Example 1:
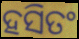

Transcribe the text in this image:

ହସିତଂ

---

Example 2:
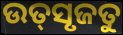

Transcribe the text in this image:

ଉତ୍‌ସୃଜତୁ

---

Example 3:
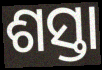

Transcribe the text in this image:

ଶସ୍ତା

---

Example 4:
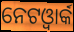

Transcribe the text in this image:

ନେଟଓ୍ବାର୍କ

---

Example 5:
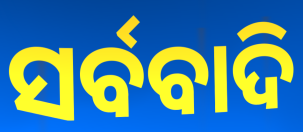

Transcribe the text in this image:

ସର୍ବବାଦି